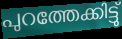
പുറത്തേക്കിട്ടു്